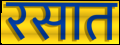
रसात